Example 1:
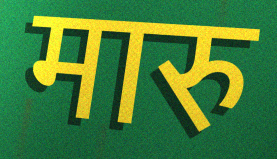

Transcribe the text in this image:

मारु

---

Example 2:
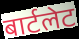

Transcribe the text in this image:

बार्टलेट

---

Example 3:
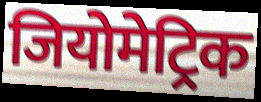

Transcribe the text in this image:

जियोमेट्रिक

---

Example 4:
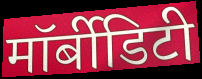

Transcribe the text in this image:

मॉर्बीडिटी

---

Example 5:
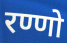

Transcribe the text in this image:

रण्णो